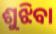
ଶୁଝିବା